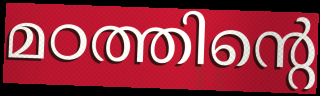
മഠത്തിന്റെ